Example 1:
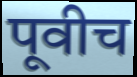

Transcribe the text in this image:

पूवीच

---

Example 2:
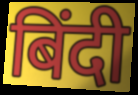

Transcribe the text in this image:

बिंदी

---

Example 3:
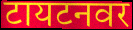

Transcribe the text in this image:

टायटनवर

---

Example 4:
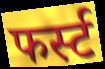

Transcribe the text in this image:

फर्स्ट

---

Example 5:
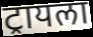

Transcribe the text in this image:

ट्रायला